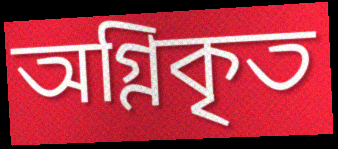
অগ্নিকৃত